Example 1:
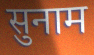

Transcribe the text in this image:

सुनाम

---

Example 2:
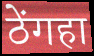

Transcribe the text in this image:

ठेंगहा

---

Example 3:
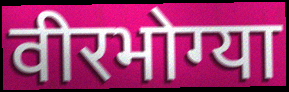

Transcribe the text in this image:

वीरभोग्या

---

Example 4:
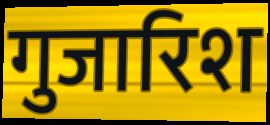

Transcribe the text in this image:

गुजारिश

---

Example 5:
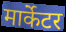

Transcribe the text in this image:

मार्केटर